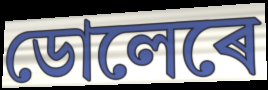
ডোলেৰে